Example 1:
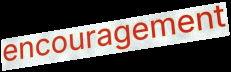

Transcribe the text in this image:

encouragement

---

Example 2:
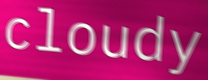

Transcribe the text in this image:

cloudy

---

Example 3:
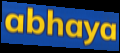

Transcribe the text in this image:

abhaya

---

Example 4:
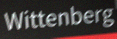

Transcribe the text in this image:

Wittenberg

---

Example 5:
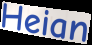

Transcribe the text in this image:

Heian